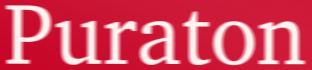
Puraton